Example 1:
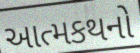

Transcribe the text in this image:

આત્મકથનો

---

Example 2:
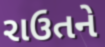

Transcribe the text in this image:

રાઉતને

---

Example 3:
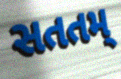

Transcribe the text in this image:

સતતમ્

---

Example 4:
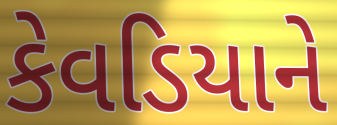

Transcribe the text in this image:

કેવડિયાને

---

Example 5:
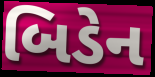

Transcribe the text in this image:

બિડેન